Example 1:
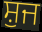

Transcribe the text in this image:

ਸ਼ੁਜ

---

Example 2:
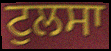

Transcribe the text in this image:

ਟੁਲਸਾ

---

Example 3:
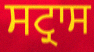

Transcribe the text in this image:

ਸਟ੍ਰਾਸ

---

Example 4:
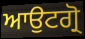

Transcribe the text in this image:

ਆਉਟਗ੍ਰੋ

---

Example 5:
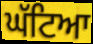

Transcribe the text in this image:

ਘੱਟਿਆ